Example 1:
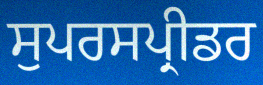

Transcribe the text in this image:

ਸੁਪਰਸਪ੍ਰੀਡਰ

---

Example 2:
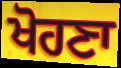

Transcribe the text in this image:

ਖੋਹਣਾ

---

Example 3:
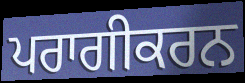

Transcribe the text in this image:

ਪਰਾਗੀਕਰਨ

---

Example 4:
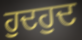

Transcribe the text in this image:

ਹੁਦਹੁਦ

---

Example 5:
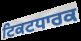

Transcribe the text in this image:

ਟਿਕਟਧਾਰਕ